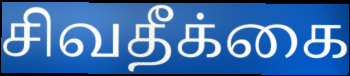
சிவதீக்கை